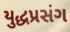
યુદ્ધપ્રસંગ